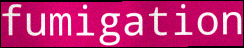
fumigation